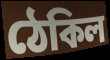
ঠেকিল